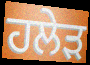
ਹਲੇੜ